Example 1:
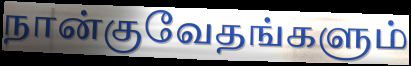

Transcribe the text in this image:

நான்குவேதங்களும்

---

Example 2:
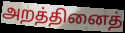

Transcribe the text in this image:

அறத்தினைத்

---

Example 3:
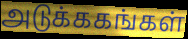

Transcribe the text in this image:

அடுக்ககங்கள்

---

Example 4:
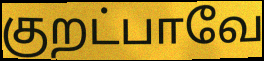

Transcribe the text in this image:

குறட்பாவே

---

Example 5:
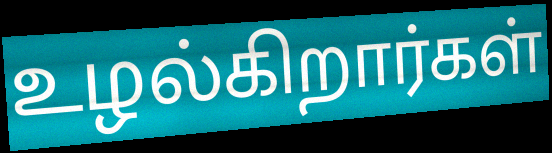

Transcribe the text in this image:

உழல்கிறார்கள்